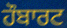
ਹੌਬਾਰਟ